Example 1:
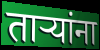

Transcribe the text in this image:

तार्‍यांना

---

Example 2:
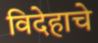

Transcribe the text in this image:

विदेहाचे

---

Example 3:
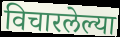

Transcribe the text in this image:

विचारलेल्या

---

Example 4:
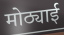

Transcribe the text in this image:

मोठ्याई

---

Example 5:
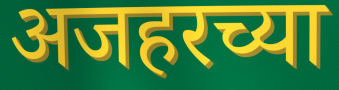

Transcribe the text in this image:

अजहरच्या